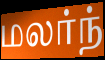
மலர்ந்